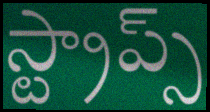
స్ట్రాప్స్